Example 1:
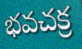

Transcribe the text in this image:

భవచక్ర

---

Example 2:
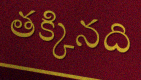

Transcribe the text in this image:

తక్కినది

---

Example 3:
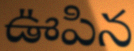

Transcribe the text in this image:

ఊపిన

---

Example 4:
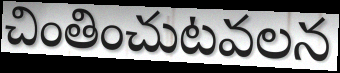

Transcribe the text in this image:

చింతించుటవలన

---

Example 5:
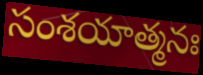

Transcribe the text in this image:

సంశయాత్మనః